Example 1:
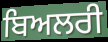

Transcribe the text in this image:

ਬਿਅਲਰੀ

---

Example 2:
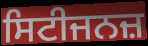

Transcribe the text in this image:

ਸਿਟੀਜਨਜ਼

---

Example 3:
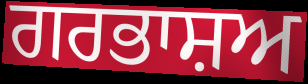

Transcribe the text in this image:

ਗਰਭਾਸ਼ਅ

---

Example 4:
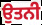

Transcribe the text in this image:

ਉਤਨੀ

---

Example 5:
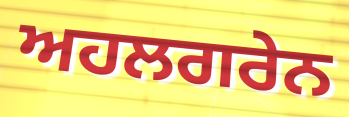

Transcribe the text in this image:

ਅਹਲਗਰੇਨ